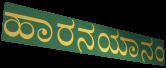
ಹಾರನಯಾನಂ